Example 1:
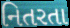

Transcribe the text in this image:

નિતરતા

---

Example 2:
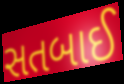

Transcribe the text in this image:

સતબાઈ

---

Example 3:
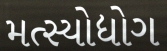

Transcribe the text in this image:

મત્સ્યોદ્યોગ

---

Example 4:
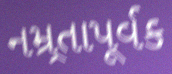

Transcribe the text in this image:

નમ્ર્રતાપૂર્વક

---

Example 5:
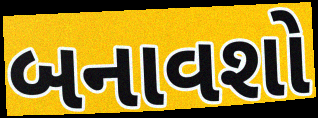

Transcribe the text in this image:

બનાવશો